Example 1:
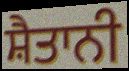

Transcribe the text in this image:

ਸ਼ੈਤਾਨੀ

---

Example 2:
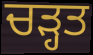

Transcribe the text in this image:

ਚੜ੍ਹਤ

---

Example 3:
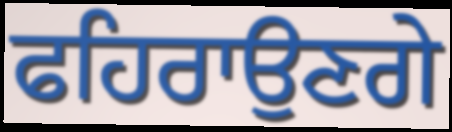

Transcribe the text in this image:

ਫਹਿਰਾਉਣਗੇ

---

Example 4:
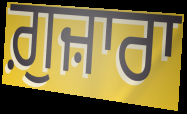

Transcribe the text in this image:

ਗ਼ੁਜ਼ਾਰਾ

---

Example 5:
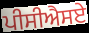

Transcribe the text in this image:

ਪੀਸੀਐਸਏ